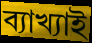
ব্যাখ্যাই